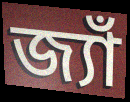
জ্যাঁ